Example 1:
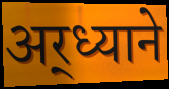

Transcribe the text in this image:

अर्ध्याने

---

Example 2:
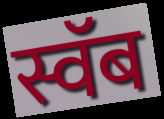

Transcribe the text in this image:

स्वॅब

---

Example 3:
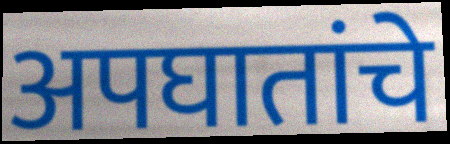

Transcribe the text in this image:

अपघातांचे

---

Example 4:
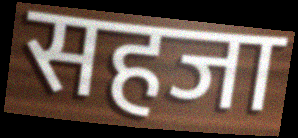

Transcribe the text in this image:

सहजा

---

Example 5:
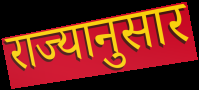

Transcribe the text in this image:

राज्यानुसार